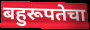
बहुरूपतेचा